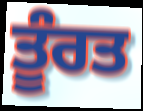
ਤੂੰਰਤ